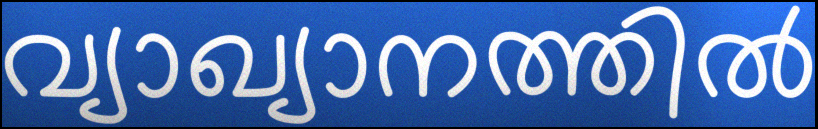
വ്യാഖ്യാനത്തിൽ